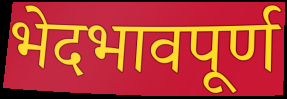
भेदभावपूर्ण